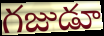
గజుడూ